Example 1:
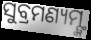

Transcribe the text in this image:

ସୁବ୍ରମଣ୍ୟମ୍ଙ୍କ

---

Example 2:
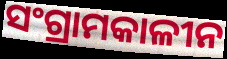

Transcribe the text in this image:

ସଂଗ୍ରାମକାଳୀନ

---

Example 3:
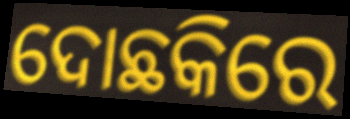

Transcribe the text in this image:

ଦୋଛକିରେ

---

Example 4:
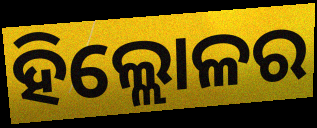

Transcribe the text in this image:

ହିଲ୍ଲୋଳର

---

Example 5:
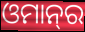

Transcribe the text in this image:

ଓମାନ୍‌ର